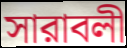
সারাবলী